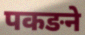
पकङने